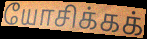
யோசிக்கக்